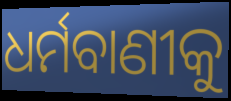
ଧର୍ମବାଣୀକୁ